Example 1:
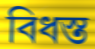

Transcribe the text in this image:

বিধস্ত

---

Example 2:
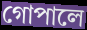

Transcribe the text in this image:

গোপালে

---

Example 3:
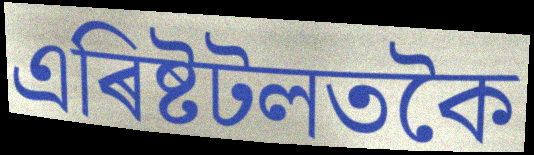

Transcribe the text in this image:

এৰিষ্টটলতকৈ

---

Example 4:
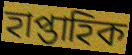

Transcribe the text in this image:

হাপ্তাহিক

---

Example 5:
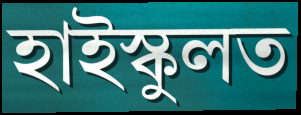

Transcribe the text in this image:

হাইস্কুলত